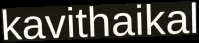
kavithaikal